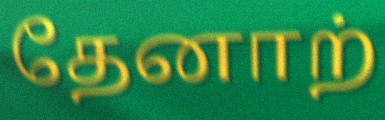
தேனாற்